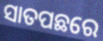
ସାତପଛରେ